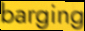
barging